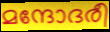
മന്ദോദരീ